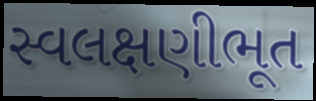
સ્વલક્ષણીભૂત